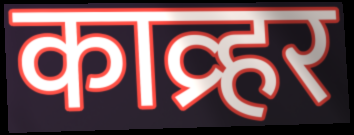
काव्र्हर